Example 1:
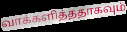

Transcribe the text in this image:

வாக்களித்ததாகவும்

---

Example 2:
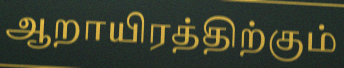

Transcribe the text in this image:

ஆறாயிரத்திற்கும்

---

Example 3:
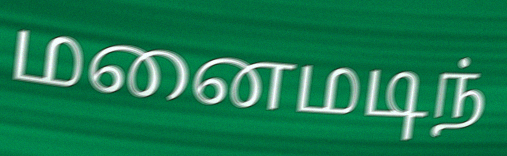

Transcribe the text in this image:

மனைமடிந்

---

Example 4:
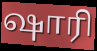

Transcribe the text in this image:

ஷாரி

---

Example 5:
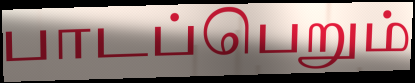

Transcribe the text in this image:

பாடப்பெறும்